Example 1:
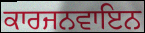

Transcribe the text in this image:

ਕਾਰਜਨਵਾਇਨ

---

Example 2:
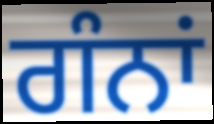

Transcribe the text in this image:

ਗੰਨਾਂ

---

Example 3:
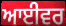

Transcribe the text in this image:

ਆਈਵਰ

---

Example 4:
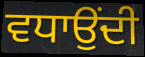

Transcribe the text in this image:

ਵਧਾਉਂਦੀ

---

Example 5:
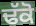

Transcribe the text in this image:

ਢੱਕੋ